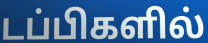
டப்பிகளில்